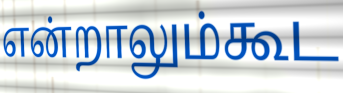
என்றாலும்கூட